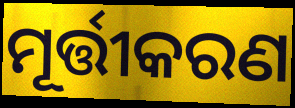
ମୂର୍ତ୍ତୀକରଣ